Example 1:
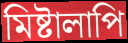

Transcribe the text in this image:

মিষ্টালাপি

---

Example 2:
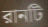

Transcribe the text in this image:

রানটি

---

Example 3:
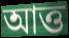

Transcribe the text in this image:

আত্ত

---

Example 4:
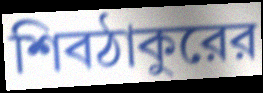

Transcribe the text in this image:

শিবঠাকুরের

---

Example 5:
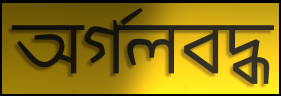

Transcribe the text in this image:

অর্গলবদ্ধ